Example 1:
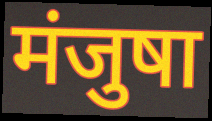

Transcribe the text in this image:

मंजुषा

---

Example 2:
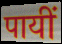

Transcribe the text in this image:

पायीं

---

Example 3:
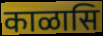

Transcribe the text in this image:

काळासि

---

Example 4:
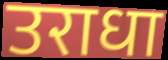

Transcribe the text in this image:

उराधा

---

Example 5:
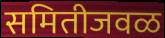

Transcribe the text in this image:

समितीजवळ